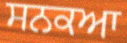
ਸਨਕਆ